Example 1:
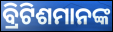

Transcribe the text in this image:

ବ୍ରିଟିଶମାନଙ୍କ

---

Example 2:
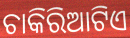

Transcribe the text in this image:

ଚାକିରିଆଟିଏ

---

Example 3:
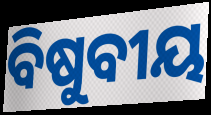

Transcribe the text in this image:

ବିଷୁବୀୟ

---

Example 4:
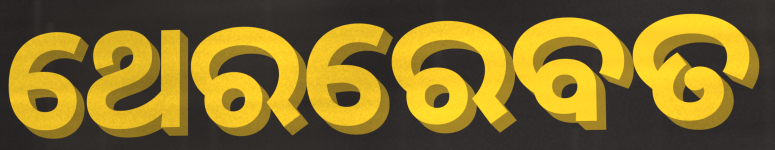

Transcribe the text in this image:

ଥେରରେବତ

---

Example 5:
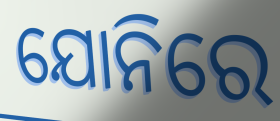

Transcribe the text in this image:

ଯୋନିରେ